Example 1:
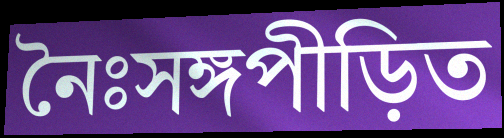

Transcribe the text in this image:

নৈঃসঙ্গপীড়িত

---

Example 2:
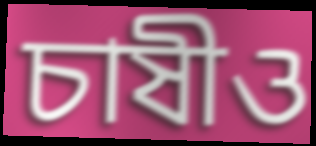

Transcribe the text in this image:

চাষীও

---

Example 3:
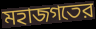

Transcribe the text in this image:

মহাজগতের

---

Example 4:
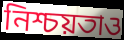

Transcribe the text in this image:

নিশ্চয়তাও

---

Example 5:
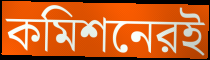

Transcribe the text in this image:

কমিশনেরই